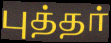
புத்தர்